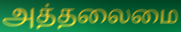
அத்தலைமை